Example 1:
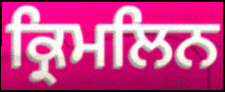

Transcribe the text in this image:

ਕ੍ਰਿਮਲਿਨ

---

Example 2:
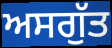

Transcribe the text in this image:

ਅਸਗੁੱਤ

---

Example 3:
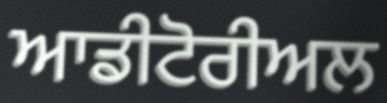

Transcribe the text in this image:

ਆਡੀਟੋਰੀਅਲ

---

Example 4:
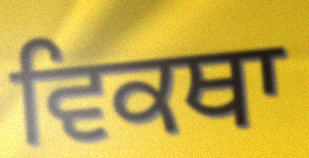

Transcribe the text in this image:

ਵਿਕਥਾ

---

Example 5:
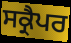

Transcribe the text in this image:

ਸਕ੍ਰੈਪਰ